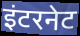
इंटरनेट